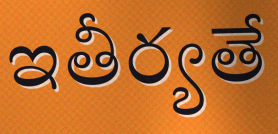
ఇతీర్యతే